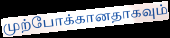
முற்போக்கானதாகவும்